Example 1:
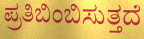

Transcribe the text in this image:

ಪ್ರತಿಬಿಂಬಿಸುತ್ತದೆ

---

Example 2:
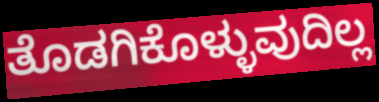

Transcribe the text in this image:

ತೊಡಗಿಕೊಳ್ಳುವುದಿಲ್ಲ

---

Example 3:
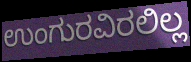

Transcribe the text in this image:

ಉಂಗುರವಿರಲಿಲ್ಲ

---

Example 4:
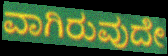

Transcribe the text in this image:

ವಾಗಿರುವುದೇ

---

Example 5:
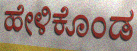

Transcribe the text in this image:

ಹೇಳಿಕೊಂಡ